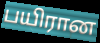
பயிரான